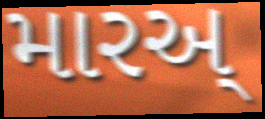
મારઅ્